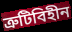
ত্রুটিবিহীন